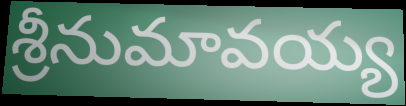
శ్రీనుమావయ్య